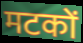
मटकों